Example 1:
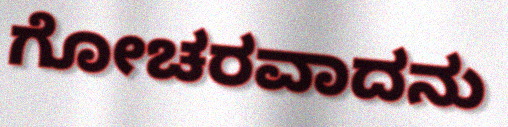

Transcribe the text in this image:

ಗೋಚರವಾದನು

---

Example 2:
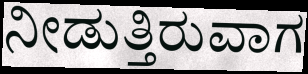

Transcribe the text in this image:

ನೀಡುತ್ತಿರುವಾಗ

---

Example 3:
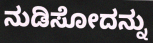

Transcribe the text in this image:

ನುಡಿಸೋದನ್ನು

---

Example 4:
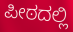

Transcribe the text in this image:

ಪೀಠದಲ್ಲಿ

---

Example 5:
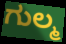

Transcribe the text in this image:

ಗುಲ್ಮ